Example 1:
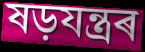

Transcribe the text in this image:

ষড়যন্ত্ৰৰ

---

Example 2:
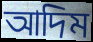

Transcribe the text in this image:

আদিম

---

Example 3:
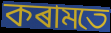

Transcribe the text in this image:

কৰামতে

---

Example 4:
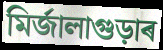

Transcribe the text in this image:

মিৰ্জালাগুড়াৰ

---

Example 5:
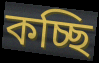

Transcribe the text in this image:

কচ্ছি